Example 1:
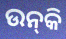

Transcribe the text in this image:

ଉନ୍‌କି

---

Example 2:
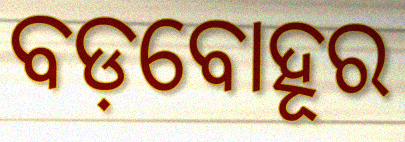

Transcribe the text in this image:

ବଡ଼ବୋହୂର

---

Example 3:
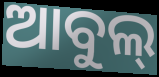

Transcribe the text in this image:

ଆବୁଲ୍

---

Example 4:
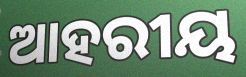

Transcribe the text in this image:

ଆହରୀୟ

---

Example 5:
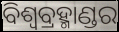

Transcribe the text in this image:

ବିଶ୍ୱବ୍ରହ୍ମାଣ୍ଡର